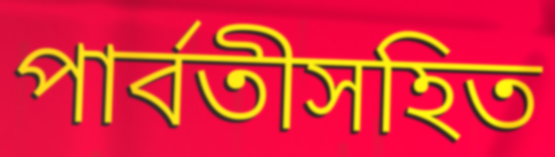
পার্বতীসহিত